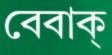
বেবাক্